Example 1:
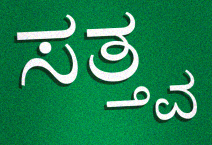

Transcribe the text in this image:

ಸತ್ತ್ವ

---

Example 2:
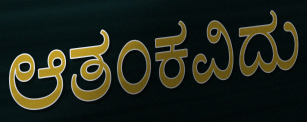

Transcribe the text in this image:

ಆತಂಕವಿದು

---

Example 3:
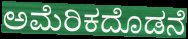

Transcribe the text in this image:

ಅಮೆರಿಕದೊಡನೆ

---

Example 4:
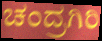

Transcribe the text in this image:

ಚಂದ್ರಗಿರಿ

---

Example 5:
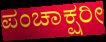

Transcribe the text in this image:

ಪಂಚಾಕ್ಷರೀ